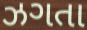
ઝગતા